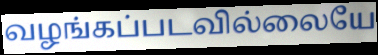
வழங்கப்படவில்லையே